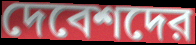
দেবেশদের